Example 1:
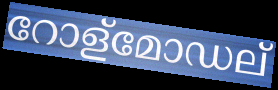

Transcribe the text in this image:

റോള്മോഡല്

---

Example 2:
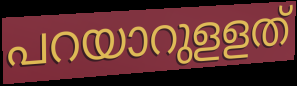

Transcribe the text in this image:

പറയാറുളളത്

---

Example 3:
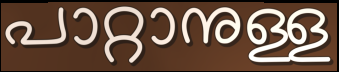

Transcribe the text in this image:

പാറ്റാനുള്ള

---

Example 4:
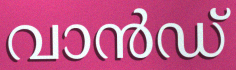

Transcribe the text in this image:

വാൻഡ്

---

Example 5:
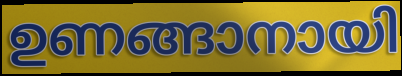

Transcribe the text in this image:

ഉണങ്ങാനായി